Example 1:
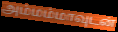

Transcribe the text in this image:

அம்மம்மாவுடன்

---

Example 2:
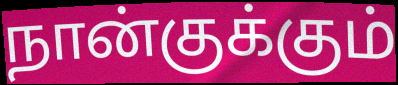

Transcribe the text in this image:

நான்குக்கும்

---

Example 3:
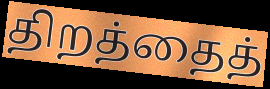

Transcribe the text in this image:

திறத்தைத்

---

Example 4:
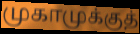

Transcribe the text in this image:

முகாமுக்குத்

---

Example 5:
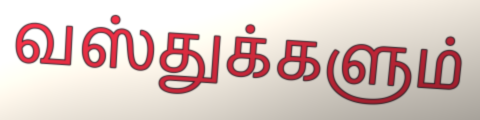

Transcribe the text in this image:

வஸ்துக்களும்